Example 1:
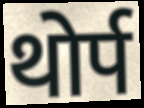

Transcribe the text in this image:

थोर्प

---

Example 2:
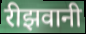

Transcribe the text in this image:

रीझवानी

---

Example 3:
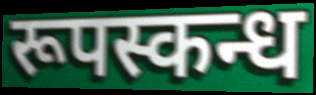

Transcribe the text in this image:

रूपस्कन्ध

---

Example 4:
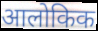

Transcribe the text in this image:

आलोकिक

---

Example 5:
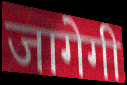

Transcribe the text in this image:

जागेगी